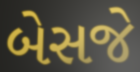
બેસજે